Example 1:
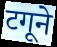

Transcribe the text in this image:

टगूने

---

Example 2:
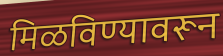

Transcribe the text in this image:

मिळविण्यावरून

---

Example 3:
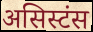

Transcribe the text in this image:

असिस्टंस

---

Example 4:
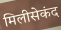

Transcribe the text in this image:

मिलीसेकंद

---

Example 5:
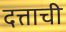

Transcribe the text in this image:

दत्ताची